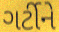
ગર્ટીને